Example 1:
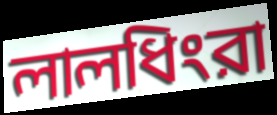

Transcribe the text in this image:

লালধিংরা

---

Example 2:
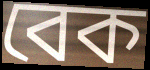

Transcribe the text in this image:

বেক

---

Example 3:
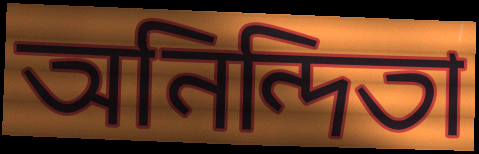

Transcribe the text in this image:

অনিন্দিতা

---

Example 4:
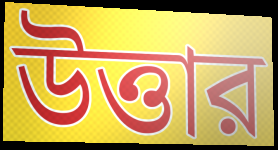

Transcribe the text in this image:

উত্তার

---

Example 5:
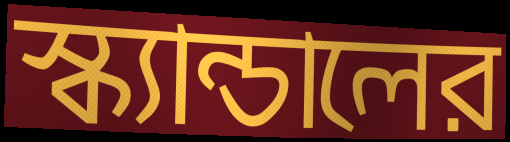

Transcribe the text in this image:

স্ক্যান্ডালের